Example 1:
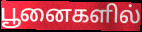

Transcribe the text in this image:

பூனைகளில்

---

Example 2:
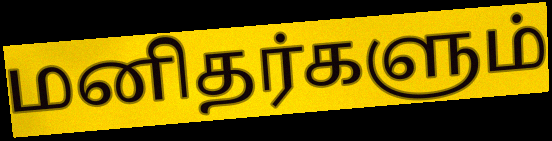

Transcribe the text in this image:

மனிதர்களும்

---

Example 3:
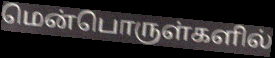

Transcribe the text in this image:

மென்பொருள்களில்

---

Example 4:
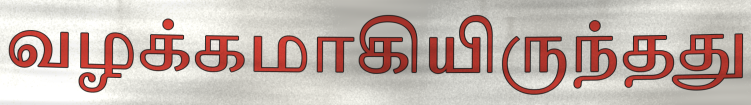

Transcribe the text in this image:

வழக்கமாகியிருந்தது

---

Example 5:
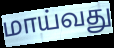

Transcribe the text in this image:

மாய்வது